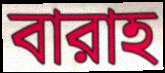
বারাহ